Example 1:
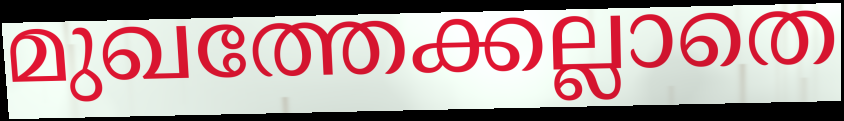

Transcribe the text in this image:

മുഖത്തേക്കല്ലാതെ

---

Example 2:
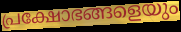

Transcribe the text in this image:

പ്രക്ഷോഭങ്ങളെയും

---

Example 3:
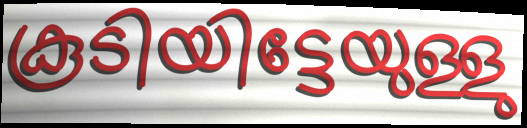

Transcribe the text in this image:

കൂടിയിട്ടേയുള്ളു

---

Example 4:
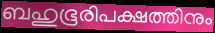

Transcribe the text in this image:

ബഹുഭൂരിപക്ഷത്തിനും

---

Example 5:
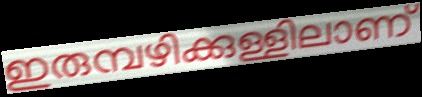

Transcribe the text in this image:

ഇരുമ്പഴിക്കുള്ളിലാണ്